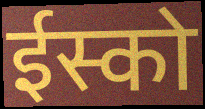
ईस्को